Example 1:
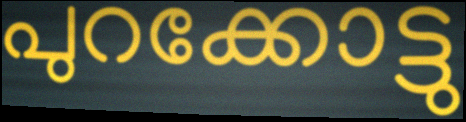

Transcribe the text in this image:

പുറക്കോട്ടു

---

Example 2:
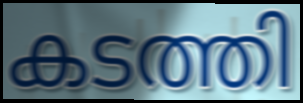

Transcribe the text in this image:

കടത്തി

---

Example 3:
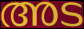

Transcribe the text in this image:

അട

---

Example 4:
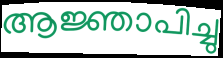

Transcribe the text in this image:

ആജ്ഞാപിച്ചു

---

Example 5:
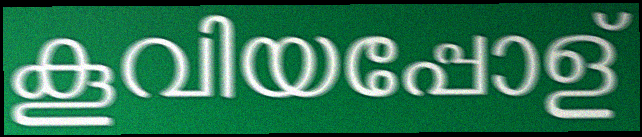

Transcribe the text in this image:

കൂവിയപ്പോള്